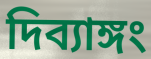
দিব্যাঙ্গং